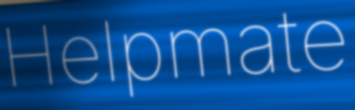
Helpmate